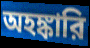
অহঙ্কারি